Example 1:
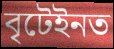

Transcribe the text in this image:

বৃটেইনত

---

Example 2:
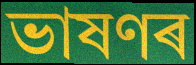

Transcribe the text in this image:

ভাষণৰ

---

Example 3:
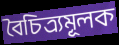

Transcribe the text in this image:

বৈচিত্ৰ্যমূলক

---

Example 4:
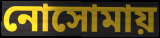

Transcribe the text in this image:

নোসোমায়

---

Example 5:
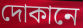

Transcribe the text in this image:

দোকানে